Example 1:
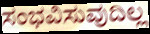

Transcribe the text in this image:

ಸಂಭವಿಸುವುದಿಲ್ಲ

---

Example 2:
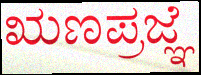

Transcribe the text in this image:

ಋಣಪ್ರಜ್ಞೆ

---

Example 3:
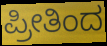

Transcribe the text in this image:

ಪ್ರೀತಿಂದ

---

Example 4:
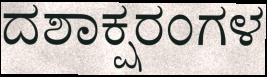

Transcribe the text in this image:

ದಶಾಕ್ಷರಂಗಳ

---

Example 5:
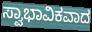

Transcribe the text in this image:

ಸ್ವಾಭಾವಿಕವಾದ